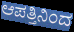
ಆಪತ್ತಿನಿಂದ